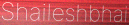
Shaileshbhai